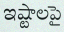
ఇష్టాలపై